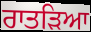
ਰਾਤੜਿਆ